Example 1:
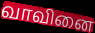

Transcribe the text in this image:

வாவினை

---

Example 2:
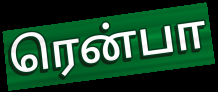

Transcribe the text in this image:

ரென்பா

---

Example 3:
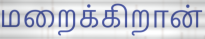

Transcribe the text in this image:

மறைக்கிறான்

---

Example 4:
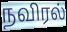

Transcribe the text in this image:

நவிரல்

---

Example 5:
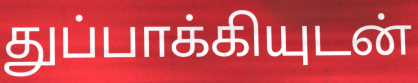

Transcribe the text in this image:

துப்பாக்கியுடன்